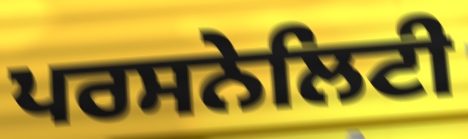
ਪਰਸਨੇਲਿਟੀ